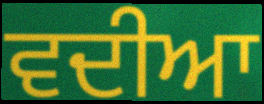
ਵਦੀਆ